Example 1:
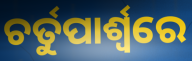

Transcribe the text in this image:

ଚର୍ତୁପାର୍ଶ୍ବରେ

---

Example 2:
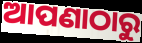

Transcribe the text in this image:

ଆପଣାଠାରୁ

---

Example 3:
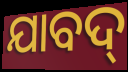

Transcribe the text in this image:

ଯାବଦ୍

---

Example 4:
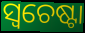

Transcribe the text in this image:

ସ୍ଵଚେଷ୍ଟା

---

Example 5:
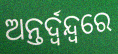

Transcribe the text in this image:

ଅନ୍ତର୍ଦ୍ୱନ୍ଦ୍ୱରେ